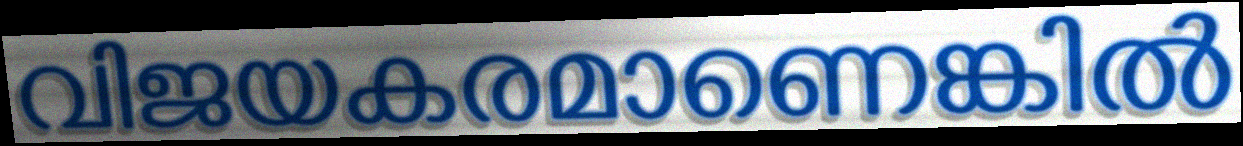
വിജയകരമാണെങ്കിൽ